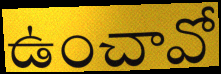
ఉంచావో